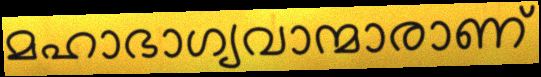
മഹാഭാഗ്യവാന്മാരാണ്